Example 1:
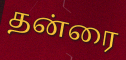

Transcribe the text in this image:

தன்ரை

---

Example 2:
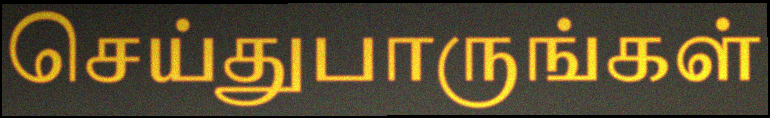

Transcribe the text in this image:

செய்துபாருங்கள்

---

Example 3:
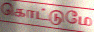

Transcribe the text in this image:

கொட்டுமே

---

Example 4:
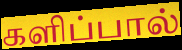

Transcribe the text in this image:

களிப்பால்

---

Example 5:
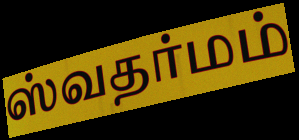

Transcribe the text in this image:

ஸ்வதர்மம்